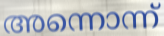
അന്നൊന്ന്